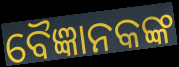
ବୈଜ୍ଞାନକଙ୍କ